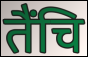
तैंचि